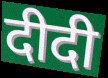
दीदी